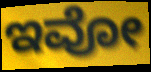
ಇವೋ